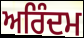
ਅਰਿੰਦਮ